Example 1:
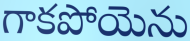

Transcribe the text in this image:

గాకపోయెను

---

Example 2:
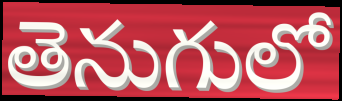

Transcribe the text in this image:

తెనుగులో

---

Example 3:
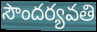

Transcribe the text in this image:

సౌందర్యవతి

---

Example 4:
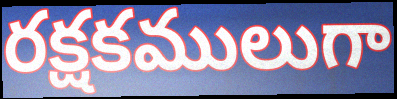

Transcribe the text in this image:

రక్షకములుగా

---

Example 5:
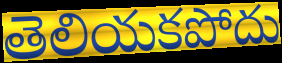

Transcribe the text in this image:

తెలియకపోదు